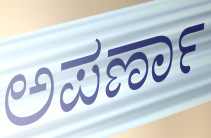
ಅಪರ್ಣಾ